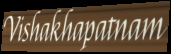
Vishakhapatnam